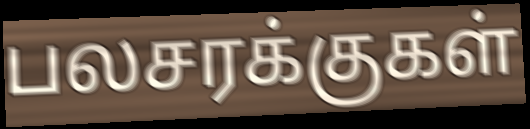
பலசரக்குகள்